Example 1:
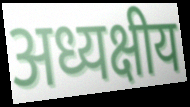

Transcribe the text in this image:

अध्यक्षीय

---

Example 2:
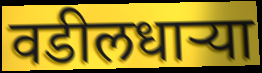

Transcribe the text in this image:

वडीलधार्‍या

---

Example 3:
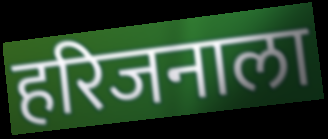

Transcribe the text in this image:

हरिजनाला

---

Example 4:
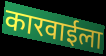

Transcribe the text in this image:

कारवाईला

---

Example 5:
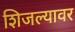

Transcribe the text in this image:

शिजल्यावर